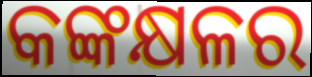
କଙ୍କକ୍ଷଳର